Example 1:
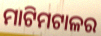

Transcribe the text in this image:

ମାଟିମଟାଳର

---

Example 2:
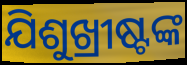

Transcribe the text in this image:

ଯିଶୁଖ୍ରୀଷ୍ଟଙ୍କ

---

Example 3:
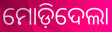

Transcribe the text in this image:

ମୋଡ଼ିଦେଲା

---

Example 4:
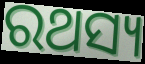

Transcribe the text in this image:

ରଥସ୍ୟ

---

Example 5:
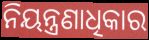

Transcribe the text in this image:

ନିୟନ୍ତ୍ରଣାଧିକାର